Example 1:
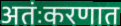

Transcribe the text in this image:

अतंःकरणात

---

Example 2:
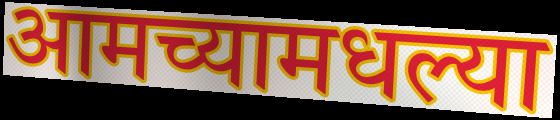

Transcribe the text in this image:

आमच्यामधल्या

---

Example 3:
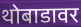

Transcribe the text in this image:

थोबाडावर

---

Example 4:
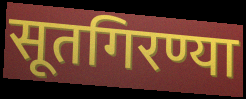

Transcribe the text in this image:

सूतगिरण्या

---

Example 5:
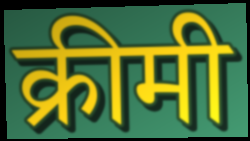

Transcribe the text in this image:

क्रीमी